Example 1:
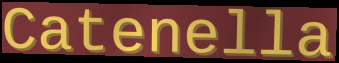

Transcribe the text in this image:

Catenella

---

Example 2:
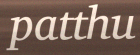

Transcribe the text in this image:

patthu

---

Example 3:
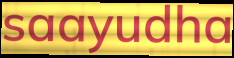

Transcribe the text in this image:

saayudha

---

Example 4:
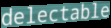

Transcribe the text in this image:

delectable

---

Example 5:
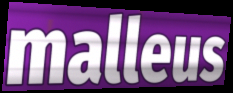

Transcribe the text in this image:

malleus